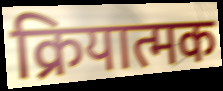
क्रियात्‍मक